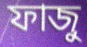
ফাজু